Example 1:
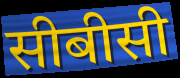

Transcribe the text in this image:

सीबीसी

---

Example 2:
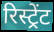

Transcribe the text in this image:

रिस्ट्रेंट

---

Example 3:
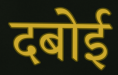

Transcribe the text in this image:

दबोई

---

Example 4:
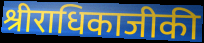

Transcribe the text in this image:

श्रीराधिकाजीकी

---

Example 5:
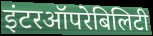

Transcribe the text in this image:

इंटरऑपरेबिलिटी